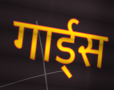
गार्ड्स